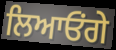
ਲਿਆਓਂਗੇ